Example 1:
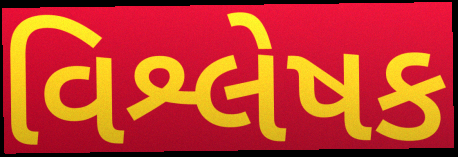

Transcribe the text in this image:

વિશ્લેષક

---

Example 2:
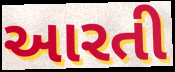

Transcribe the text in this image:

આરતી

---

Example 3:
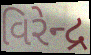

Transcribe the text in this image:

વિરેન્દ્ર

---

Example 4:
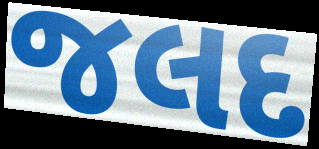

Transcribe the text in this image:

જલદ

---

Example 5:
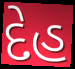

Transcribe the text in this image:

દેહ